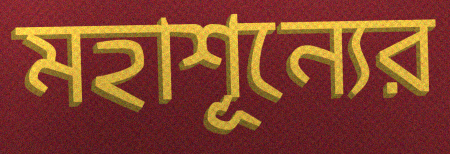
মহাশূন্যের